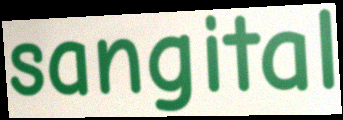
sangital